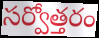
సర్వోత్తరం